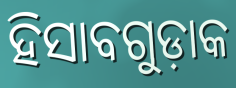
ହିସାବଗୁଡ଼ାକ